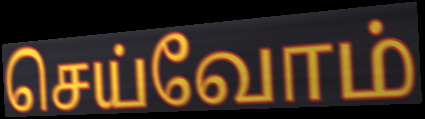
செய்வோம்